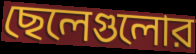
ছেলেগুলোর